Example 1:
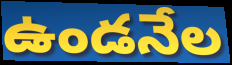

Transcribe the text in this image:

ఉండనేల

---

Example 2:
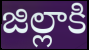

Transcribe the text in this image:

జిల్లాకి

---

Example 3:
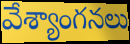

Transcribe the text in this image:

వేశ్యాంగనలు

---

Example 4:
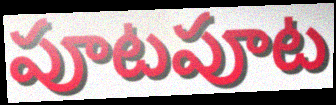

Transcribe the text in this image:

పూటపూట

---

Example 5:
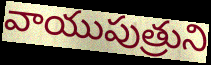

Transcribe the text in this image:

వాయుపుత్రుని